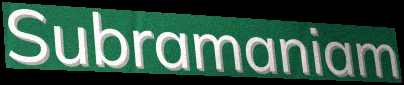
Subramaniam